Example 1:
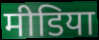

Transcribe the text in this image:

मीडिया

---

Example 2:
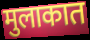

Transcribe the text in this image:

मुलाकात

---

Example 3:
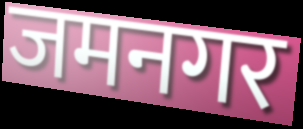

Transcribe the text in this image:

जमनगर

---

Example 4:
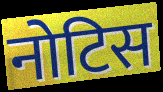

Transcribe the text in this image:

नोटिस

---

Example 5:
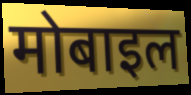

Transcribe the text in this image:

मोबाइल